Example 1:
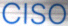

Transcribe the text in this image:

CISO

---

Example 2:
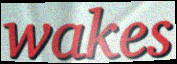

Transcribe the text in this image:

wakes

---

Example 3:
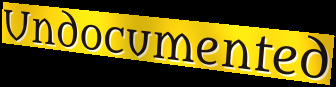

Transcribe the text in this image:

Undocumented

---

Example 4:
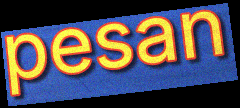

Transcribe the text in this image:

pesan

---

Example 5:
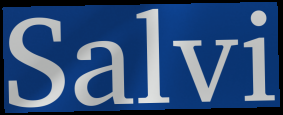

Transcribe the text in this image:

Salvi